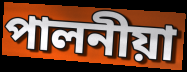
পালনীয়া